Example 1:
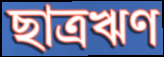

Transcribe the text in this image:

ছাত্রঋণ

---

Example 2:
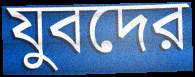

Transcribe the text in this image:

যুবদের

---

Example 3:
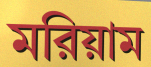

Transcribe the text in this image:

মরিয়াম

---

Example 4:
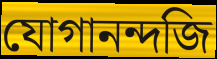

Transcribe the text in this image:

যোগানন্দজি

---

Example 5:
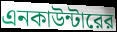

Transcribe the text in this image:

এনকাউন্টারের